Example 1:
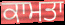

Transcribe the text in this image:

ਕਾਮਤਾ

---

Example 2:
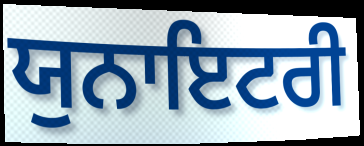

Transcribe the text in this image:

ਯੁਨਾਇਟਰੀ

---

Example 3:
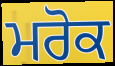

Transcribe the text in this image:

ਮਰੋਕ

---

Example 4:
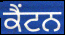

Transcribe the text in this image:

ਕੈਂਟਨ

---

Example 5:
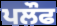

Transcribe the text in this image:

ਪਲੌਫ